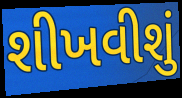
શીખવીશું